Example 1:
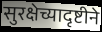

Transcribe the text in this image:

सुरक्षेच्यादृष्टीने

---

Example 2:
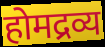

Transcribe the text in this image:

होमद्रव्य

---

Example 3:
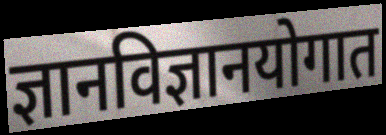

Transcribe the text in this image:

ज्ञानविज्ञानयोगात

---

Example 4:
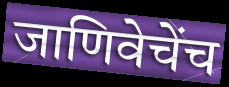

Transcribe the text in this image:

जाणिवेचेंच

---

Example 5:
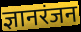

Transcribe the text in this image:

ज्ञानरंजन